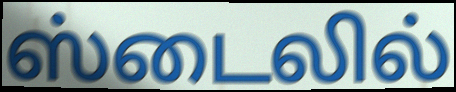
ஸ்டைலில்